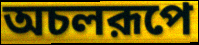
অচলরূপে